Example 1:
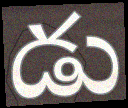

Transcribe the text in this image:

డు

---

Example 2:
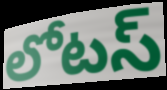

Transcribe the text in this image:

లోటస్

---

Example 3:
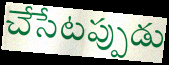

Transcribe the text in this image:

చేసేటప్పుడు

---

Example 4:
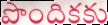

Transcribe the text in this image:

పొందికకు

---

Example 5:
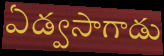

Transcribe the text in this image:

ఏడ్వసాగాడు